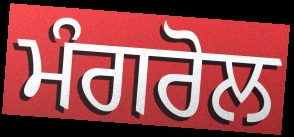
ਮੰਗਰੋਲ